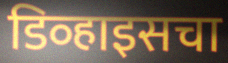
डिव्हाइसचा